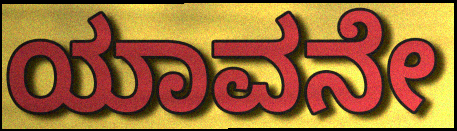
ಯಾವನೇ